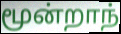
மூன்றாந்